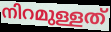
നിറമുള്ളത്